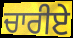
ਚਾਰੀਏ